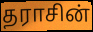
தராசின்